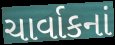
ચાર્વાકનાં